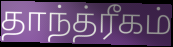
தாந்த்ரீகம்